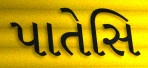
પાતેસિ